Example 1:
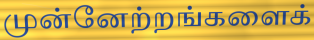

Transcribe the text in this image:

முன்னேற்றங்களைக்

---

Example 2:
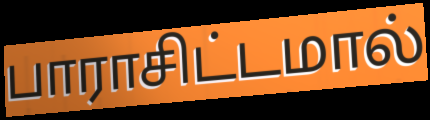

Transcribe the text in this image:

பாராசிட்டமால்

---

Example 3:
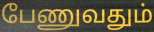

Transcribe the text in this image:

பேணுவதும்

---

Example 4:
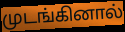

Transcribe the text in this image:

முடங்கினால்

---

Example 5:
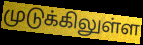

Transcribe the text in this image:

முடுக்கிலுள்ள